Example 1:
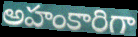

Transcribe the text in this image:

అహంకారిగా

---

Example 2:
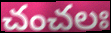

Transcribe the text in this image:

చంచలః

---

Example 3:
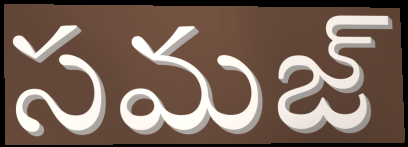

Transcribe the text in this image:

సమజ్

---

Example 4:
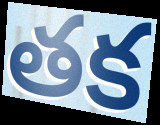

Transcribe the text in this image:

తక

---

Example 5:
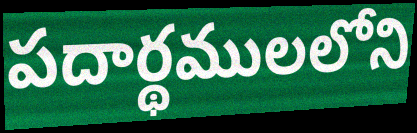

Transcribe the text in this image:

పదార్థములలోని